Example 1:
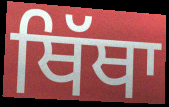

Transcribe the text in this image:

ਥਿੱਥਾ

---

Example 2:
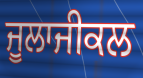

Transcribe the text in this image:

ਜੂਲਾਜੀਕਲ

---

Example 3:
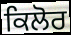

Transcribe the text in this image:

ਕਿਲੋਰ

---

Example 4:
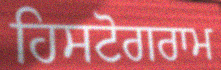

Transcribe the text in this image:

ਹਿਸਟੋਗਰਾਮ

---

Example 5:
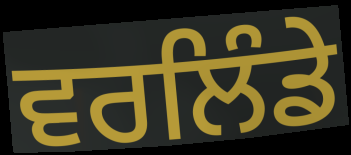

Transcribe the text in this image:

ਵਰਲਿੰਡੇ